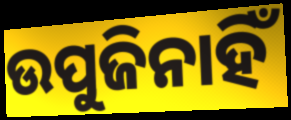
ଉପୁଜିନାହିଁ